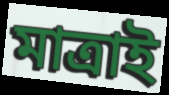
মাত্রাই